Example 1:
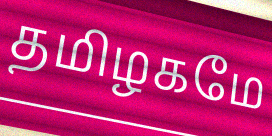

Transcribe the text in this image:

தமிழகமே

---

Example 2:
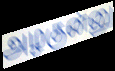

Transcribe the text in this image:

அழகுன்னு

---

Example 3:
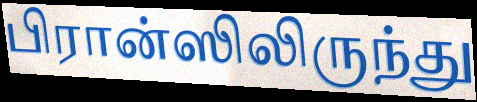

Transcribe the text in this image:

பிரான்ஸிலிருந்து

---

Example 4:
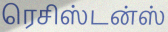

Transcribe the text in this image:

ரெசிஸ்டன்ஸ்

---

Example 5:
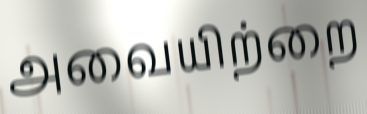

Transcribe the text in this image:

அவையிற்றை